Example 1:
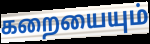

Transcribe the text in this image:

கறையையும்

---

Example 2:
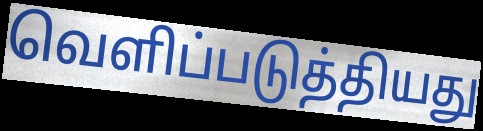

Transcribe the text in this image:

வெளிப்படுத்தியது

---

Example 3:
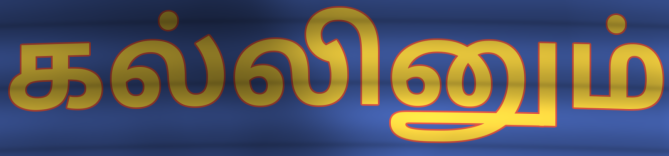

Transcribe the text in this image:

கல்லினும்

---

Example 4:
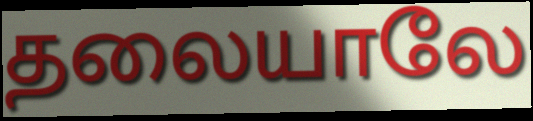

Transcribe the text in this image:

தலையாலே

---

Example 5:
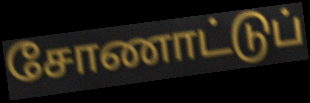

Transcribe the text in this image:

சோணாட்டுப்